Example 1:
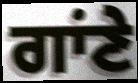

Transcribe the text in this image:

ਗਾਂਣੇ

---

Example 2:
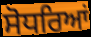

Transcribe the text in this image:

ਸੋਧਰਿਆਂ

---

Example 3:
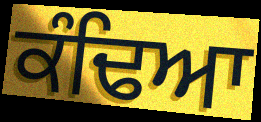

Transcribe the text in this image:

ਕੰਢਿਆ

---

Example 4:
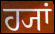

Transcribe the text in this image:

ਹ੍ਯਾਂ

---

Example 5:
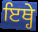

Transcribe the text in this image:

ਇਥ੍ਹੇ